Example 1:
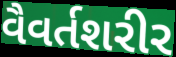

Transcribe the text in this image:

વૈવર્તશરીર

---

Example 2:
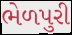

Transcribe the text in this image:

ભેળપુરી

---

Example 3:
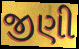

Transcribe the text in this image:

જીણી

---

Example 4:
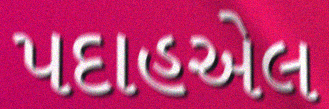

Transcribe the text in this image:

પદાહએલ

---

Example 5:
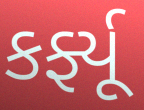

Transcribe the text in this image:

કર્ફ્યૂ